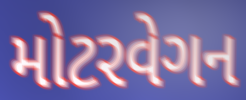
મોટરવેગન